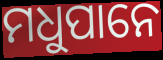
ମଧୁପାନେ